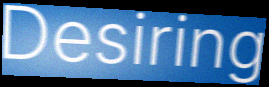
Desiring